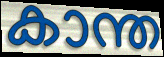
കാന്ത